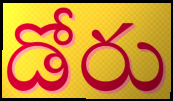
డోరు